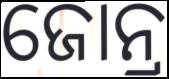
ଜୋନ୍ର